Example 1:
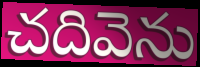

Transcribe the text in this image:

చదివెను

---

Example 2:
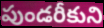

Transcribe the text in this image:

పుండరీకుని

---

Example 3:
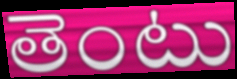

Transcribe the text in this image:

తెంటు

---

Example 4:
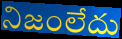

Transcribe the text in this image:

నిజంలేదు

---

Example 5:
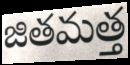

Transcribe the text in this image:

జితమత్త